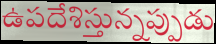
ఉపదేశిస్తున్నప్పుడు